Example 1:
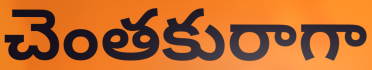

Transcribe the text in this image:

చెంతకురాగా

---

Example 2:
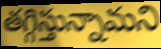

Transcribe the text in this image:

తగ్గిస్తున్నామని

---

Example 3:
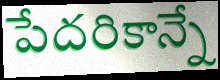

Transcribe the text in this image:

పేదరికాన్నే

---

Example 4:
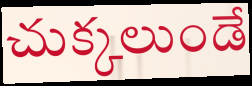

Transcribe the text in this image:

చుక్కలుండే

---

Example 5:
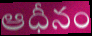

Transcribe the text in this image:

ఆధీనం